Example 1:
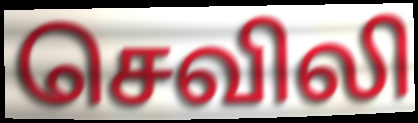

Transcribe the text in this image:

செவிலி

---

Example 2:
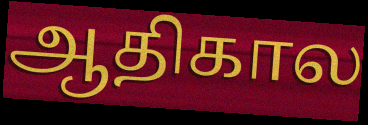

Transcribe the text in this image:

ஆதிகால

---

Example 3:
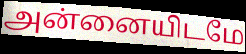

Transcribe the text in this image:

அன்னையிடமே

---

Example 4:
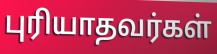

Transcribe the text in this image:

புரியாதவர்கள்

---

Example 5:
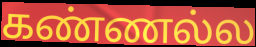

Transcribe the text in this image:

கண்ணல்ல